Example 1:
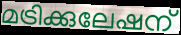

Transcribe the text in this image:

മട്രിക്കുലേഷന്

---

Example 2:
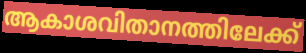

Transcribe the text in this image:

ആകാശവിതാനത്തിലേക്ക്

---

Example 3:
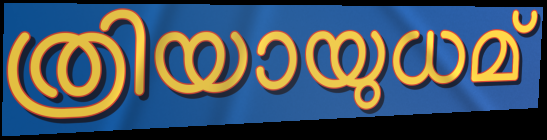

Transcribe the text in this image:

ത്രിയായുധമ്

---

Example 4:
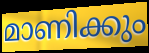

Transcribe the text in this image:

മാണിക്കും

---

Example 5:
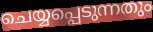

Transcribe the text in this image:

ചെയ്യപ്പെടുന്നതും